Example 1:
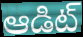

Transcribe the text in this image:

ఆడిట్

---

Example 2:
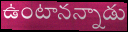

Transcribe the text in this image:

ఉంటానన్నాడు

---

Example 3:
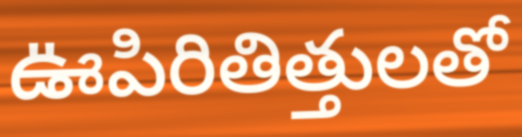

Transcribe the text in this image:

ఊపిరితిత్తులతో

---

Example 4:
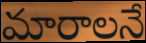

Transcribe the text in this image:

మారాలనే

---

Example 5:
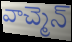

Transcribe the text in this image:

వాచ్మెన్